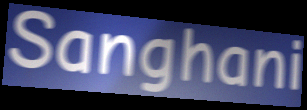
Sanghani